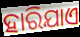
ହାରିଯାଏ